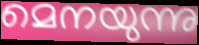
മെനയുന്നു